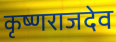
कृष्णराजदेव